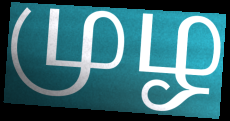
முழ